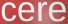
cere